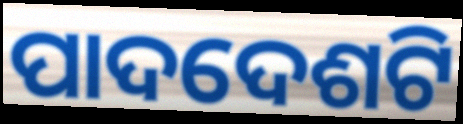
ପାଦଦେଶଟି